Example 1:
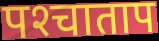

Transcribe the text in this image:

पश्चाताप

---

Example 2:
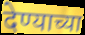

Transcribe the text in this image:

देण्याच्या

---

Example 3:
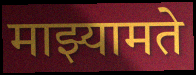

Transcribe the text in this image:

माझ्यामते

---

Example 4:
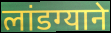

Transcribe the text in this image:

लांडग्याने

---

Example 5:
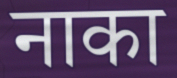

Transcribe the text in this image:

नाका